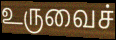
உருவைச்